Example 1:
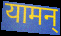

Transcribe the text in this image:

यामन्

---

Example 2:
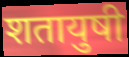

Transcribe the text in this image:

शतायुषी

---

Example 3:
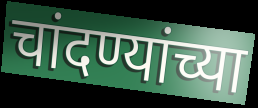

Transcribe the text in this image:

चांदण्यांच्या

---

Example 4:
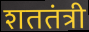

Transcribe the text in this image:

शततंत्री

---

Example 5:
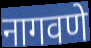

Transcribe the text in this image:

नागवणे